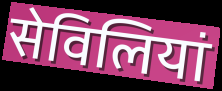
सेविलियां